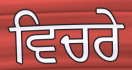
ਵਿਚਰੇ